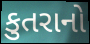
કુતરાનો